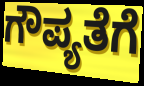
ಗೌಪ್ಯತೆಗೆ